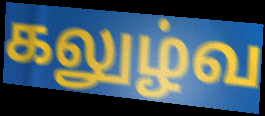
கலுழ்வ